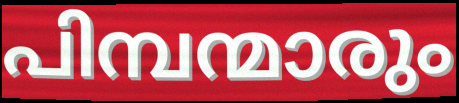
പിമ്പന്മാരും